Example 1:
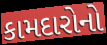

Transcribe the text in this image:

કામદારોનો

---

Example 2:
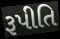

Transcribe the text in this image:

રૂપીતિ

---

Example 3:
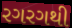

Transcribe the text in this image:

રગરગથી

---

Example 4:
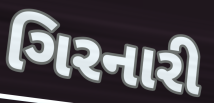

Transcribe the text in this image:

ગિરનારી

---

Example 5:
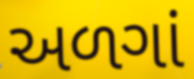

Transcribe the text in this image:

અળગાં